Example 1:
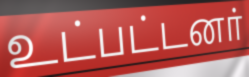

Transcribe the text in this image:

உட்பட்டனர்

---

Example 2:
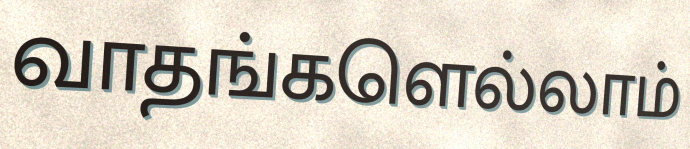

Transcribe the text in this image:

வாதங்களெல்லாம்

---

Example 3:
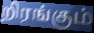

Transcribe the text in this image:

றிரங்கும்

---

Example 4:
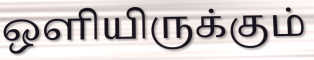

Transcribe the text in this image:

ஒளியிருக்கும்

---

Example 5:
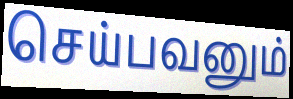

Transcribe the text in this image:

செய்பவனும்